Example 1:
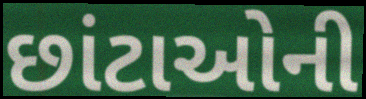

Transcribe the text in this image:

છાંટાઓની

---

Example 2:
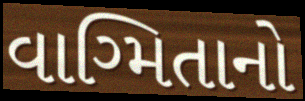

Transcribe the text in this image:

વાગ્મિતાનો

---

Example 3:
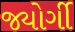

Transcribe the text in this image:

જ્યોર્ગી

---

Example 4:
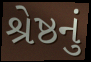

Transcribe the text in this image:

શ્રેષ્ઠનું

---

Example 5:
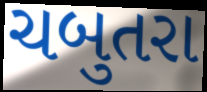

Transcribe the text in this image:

ચબુતરા